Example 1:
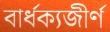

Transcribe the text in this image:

বার্ধক্যজীর্ণ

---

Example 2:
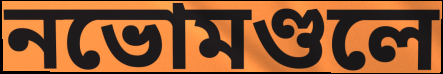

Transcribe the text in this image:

নভোমণ্ডলে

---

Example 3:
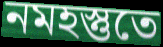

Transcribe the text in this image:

নমহস্তুতে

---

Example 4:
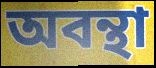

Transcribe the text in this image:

অবন্থা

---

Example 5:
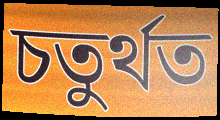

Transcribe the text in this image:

চতুর্থত